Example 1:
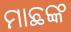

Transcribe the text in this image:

ମାଛଙ୍କ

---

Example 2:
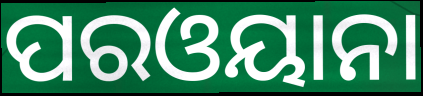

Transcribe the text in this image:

ପରଓୟାନା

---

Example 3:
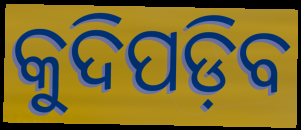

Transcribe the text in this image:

କୁଦିପଡ଼ିବ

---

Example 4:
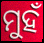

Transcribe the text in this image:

ମୁହଁ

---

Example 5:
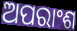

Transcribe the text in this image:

ଅପରାଂଶ